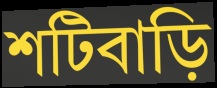
শটিবাড়ি